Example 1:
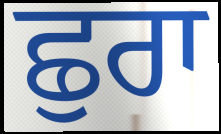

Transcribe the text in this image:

ਛੁਰਾ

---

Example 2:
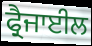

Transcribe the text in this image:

ਫ੍ਰੈਜਾਈਲ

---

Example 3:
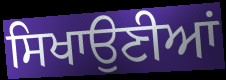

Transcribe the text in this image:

ਸਿਖਾਉਣੀਆਂ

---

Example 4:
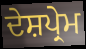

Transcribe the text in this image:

ਦੇਸ਼ਪ੍ਰੇਮ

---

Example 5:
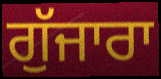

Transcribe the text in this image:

ਗੁੱਜਾਰਾ